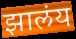
झालंय